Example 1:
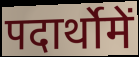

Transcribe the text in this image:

पदार्थोमें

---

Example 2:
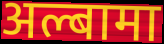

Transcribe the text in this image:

अल्बामा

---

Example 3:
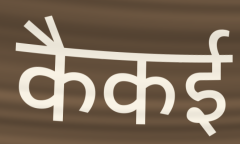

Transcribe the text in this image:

कैकई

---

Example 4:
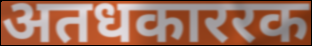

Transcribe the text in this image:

अतधकाररक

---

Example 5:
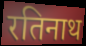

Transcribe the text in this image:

रतिनाथ